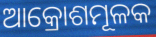
ଆକ୍ରୋଶମୂଳକ